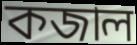
কজাল